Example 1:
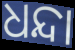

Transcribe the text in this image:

ଧନ୍ଦା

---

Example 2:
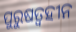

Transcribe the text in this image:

ପୁରୁଷତ୍ୱହୀନ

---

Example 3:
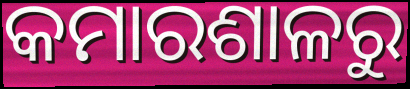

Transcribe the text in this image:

କମାରଶାଳରୁ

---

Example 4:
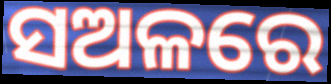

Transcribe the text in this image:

ସଅଳରେ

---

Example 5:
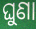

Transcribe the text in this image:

ଘୁଣା